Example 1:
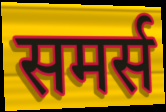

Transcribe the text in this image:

समर्स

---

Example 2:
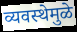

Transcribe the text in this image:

व्यवस्थेमुळे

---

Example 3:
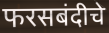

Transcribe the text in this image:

फरसबंदीचे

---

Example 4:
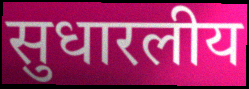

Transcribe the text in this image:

सुधारलीय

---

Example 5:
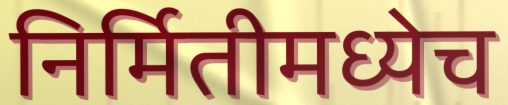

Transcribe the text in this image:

निर्मितीमध्येच